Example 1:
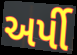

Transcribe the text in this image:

અર્પી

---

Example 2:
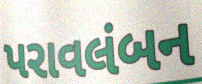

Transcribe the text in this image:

પરાવલંબન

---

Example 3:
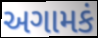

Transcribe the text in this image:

અગામકં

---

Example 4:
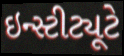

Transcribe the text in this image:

ઇન્સ્ટીટ્યૂટે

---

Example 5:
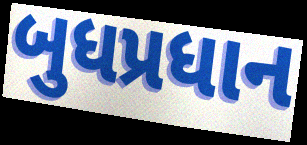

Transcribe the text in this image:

બુધપ્રધાન